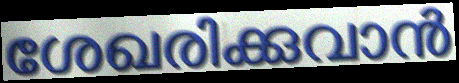
ശേഖരിക്കുവാൻ